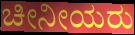
ಚೀನೀಯರು